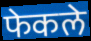
फेकले